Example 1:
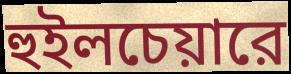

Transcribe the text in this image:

হুইলচেয়ারে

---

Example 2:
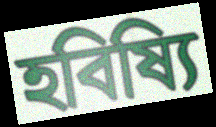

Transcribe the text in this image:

হবিষ্যি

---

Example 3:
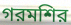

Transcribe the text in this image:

গরমশির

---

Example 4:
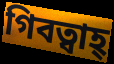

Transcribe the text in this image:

গিবত্বাহ্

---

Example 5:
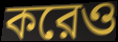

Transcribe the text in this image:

করেও